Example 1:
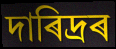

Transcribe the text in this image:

দাৰিদ্ৰৰ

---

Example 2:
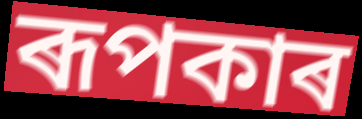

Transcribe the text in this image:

ৰূপকাৰ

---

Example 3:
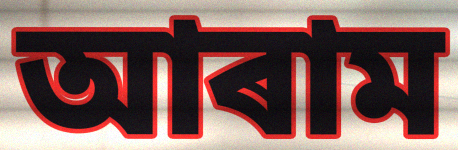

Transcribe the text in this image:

আৰাম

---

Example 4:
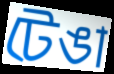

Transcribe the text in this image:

টেঙা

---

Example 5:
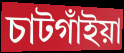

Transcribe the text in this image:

চাটগাঁইয়া